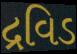
દ્રવિડ